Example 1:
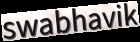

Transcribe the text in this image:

swabhavik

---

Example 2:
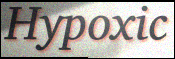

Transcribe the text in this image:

Hypoxic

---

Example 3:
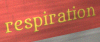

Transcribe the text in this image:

respiration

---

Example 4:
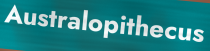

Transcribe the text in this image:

Australopithecus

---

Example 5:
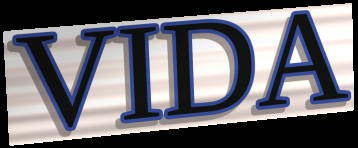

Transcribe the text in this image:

VIDA